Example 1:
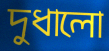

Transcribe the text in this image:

দুধালো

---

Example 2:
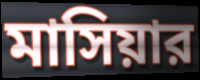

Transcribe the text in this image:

মাসিয়ার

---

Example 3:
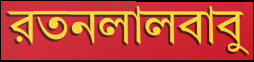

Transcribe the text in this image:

রতনলালবাবু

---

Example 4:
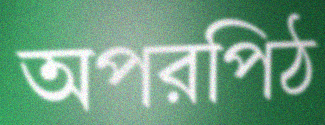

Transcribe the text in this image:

অপরপিঠ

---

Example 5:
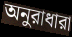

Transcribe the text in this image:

অনুরাধারা